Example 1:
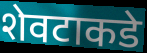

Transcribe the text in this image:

शेवटाकडे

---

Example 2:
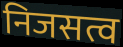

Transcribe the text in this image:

निजसत्व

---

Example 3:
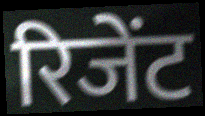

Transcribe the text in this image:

रिजेंट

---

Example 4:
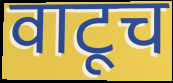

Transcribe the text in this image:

वाटूच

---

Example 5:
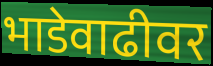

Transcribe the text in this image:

भाडेवाढीवर